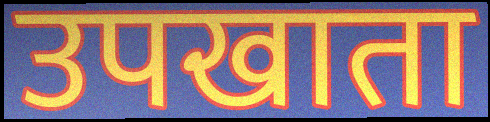
उपखाता